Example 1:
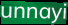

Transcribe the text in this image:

unnayi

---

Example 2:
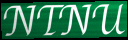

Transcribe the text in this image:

NTNU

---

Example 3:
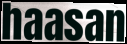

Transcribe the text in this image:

haasan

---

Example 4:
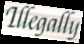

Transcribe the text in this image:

Illegally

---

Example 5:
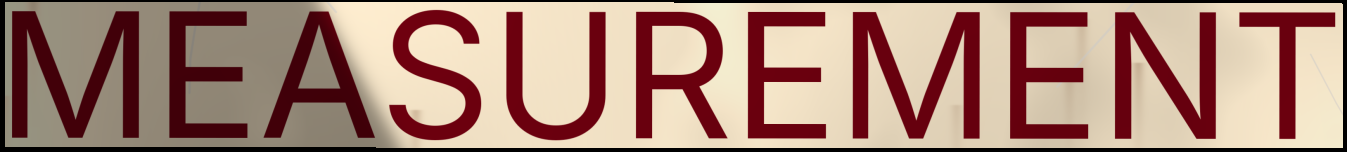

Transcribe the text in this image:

MEASUREMENT